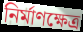
নির্মাণক্ষেত্র